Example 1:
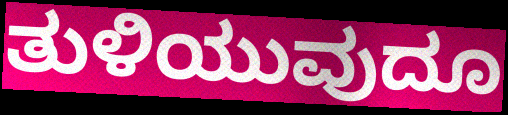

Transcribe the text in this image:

ತುಳಿಯುವುದೂ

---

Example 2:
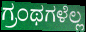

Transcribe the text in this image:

ಗ್ರಂಥಗಳೆಲ್ಲ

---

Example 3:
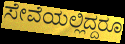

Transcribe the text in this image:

ಸೇವೆಯಲ್ಲಿದ್ದರೂ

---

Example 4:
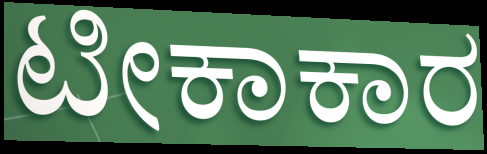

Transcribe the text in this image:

ಟೀಕಾಕಾರ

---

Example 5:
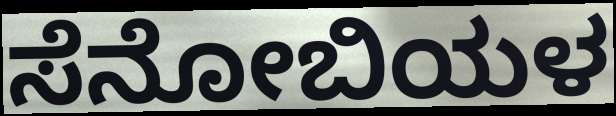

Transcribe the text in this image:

ಸೆನೋಬಿಯಳ